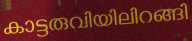
കാട്ടരുവിയിലിറങ്ങി